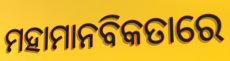
ମହାମାନବିକତାରେ